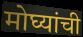
मोघ्यांची